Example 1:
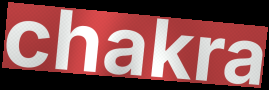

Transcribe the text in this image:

chakra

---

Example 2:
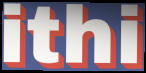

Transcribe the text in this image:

ithi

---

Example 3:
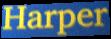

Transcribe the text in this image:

Harper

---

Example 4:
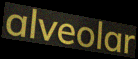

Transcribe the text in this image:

alveolar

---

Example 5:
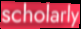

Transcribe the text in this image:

scholarly